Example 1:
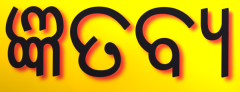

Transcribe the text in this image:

ଜ୍ଞତବ୍ୟ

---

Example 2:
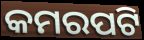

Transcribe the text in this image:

କମରପଟି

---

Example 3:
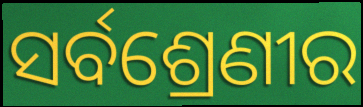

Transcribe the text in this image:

ସର୍ବଶ୍ରେଣୀର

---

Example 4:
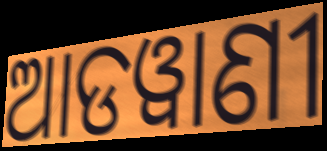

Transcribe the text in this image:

ଆଡୱାଣୀ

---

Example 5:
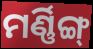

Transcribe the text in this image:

ମର୍ଣ୍ଣିଙ୍ଗ୍